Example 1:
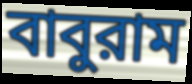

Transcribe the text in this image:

বাবুরাম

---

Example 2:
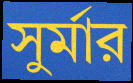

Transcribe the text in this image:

সুর্মার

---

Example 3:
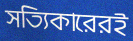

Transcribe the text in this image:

সত্যিকারেরই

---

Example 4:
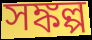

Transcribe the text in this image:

সঙ্কল্প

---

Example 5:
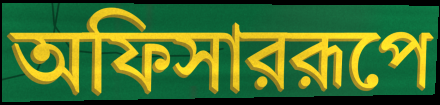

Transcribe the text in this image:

অফিসাররূপে